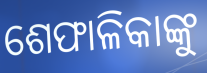
ଶେଫାଳିକାଙ୍କୁ